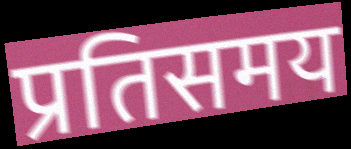
प्रतिसमय